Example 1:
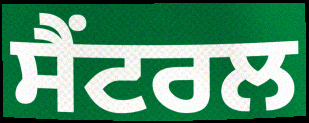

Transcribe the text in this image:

ਸੈਂਟਰਲ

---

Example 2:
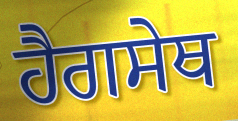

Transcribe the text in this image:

ਹੈਗਸੇਥ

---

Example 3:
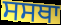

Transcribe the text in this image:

ਸਸਥਾ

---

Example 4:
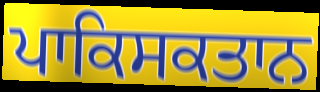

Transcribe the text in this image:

ਪਾਕਿਸਕਤਾਨ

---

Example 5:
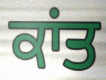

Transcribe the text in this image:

ਕਾਂਤ